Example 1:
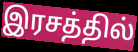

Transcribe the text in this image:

இரசத்தில்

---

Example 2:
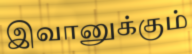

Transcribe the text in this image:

இவானுக்கும்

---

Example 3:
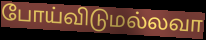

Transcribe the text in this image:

போய்விடுமல்லவா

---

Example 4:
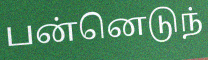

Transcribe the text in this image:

பன்னெடுந்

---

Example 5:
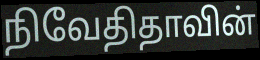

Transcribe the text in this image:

நிவேதிதாவின்